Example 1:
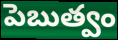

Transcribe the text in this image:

పెబుత్వం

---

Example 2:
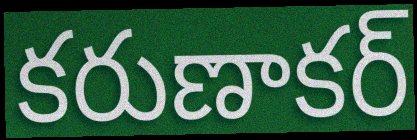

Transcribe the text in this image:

కరుణాకర్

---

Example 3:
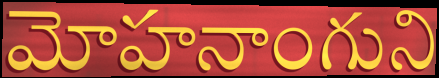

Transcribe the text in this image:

మోహనాంగుని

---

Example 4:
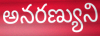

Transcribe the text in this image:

అనరణ్యుని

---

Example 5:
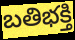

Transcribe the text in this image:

బతిభక్తి